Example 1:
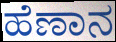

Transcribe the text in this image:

ಹೆಣಾನ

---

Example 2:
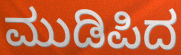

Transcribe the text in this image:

ಮುಡಿಪಿದ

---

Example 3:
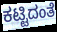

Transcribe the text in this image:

ಕಟ್ಟಿದಂತೆ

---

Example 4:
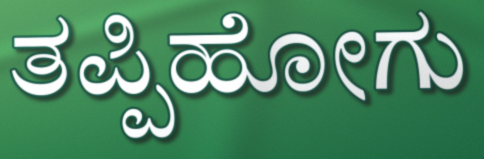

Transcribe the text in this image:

ತಪ್ಪಿಹೋಗು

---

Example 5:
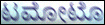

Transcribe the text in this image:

ಟಮೋಟೊ